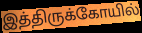
இத்திருக்கோயில்